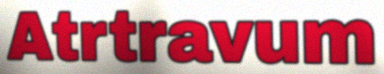
Atrtravum